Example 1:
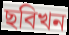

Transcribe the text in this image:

ছবিখন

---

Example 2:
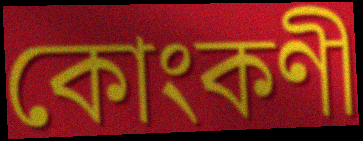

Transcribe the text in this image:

কোংকণী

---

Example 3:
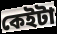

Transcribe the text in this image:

কেইটা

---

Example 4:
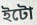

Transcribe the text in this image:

ইটো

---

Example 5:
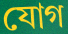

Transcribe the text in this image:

যোগ